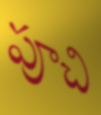
పూచి